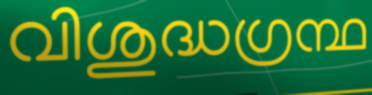
വിശുദ്ധഗ്രന്ഥ